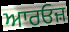
ਆਰਓਜ਼